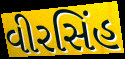
વીરસિંહ